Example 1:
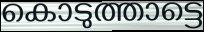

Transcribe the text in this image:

കൊടുത്താട്ടെ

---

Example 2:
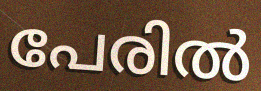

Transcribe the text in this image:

പേരിൽ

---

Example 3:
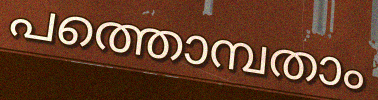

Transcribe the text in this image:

പത്തൊമ്പതാം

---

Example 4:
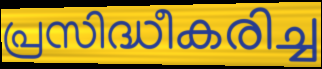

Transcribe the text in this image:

പ്രസിദ്ധീകരിച്ച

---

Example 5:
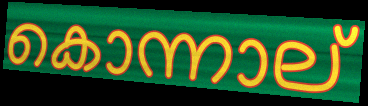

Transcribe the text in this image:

കൊന്നാല്